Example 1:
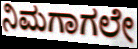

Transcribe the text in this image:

ನಿಮಗಾಗಲೇ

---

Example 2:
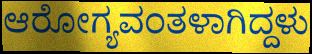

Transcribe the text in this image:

ಆರೋಗ್ಯವಂತಳಾಗಿದ್ದಳು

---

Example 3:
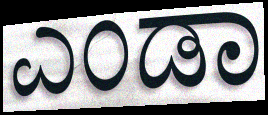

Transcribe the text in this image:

ಎಂಡಾ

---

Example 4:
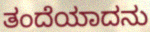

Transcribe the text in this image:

ತಂದೆಯಾದನು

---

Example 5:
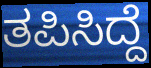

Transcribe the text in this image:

ತಪಿಸಿದ್ದೆ